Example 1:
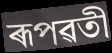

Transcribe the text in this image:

ৰূপৱতী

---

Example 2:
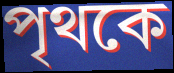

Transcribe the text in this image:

পৃথকে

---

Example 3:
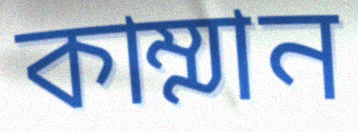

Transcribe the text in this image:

কাম্মান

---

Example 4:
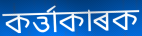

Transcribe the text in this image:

কৰ্ত্তাকাৰক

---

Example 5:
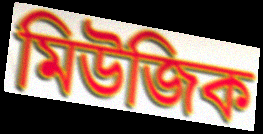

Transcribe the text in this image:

মিউজিক